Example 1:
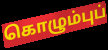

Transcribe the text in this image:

கொழும்புப்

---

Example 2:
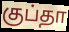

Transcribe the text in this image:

குப்தா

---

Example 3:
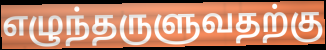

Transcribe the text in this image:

எழுந்தருளுவதற்கு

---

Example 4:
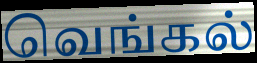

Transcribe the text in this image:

வெங்கல்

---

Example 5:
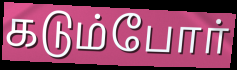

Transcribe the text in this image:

கடும்போர்